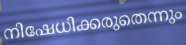
നിഷേധിക്കരുതെന്നും